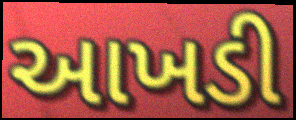
આખડી